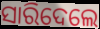
ସାରିଦେଲେ